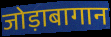
जोड़ाबागान